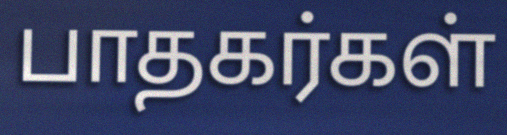
பாதகர்கள்